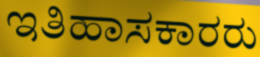
ಇತಿಹಾಸಕಾರರು